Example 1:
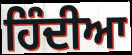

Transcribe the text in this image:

ਹਿੰਦੀਆ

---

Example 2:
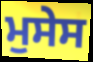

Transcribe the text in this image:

ਮੁਸੇਸ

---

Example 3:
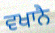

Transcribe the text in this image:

ਵਖਾਨੈ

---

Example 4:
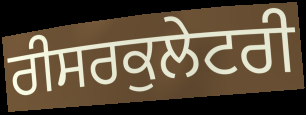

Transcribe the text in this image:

ਰੀਸਰਕੁਲੇਟਰੀ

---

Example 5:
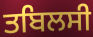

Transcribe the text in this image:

ਤਬਿਲਸੀ